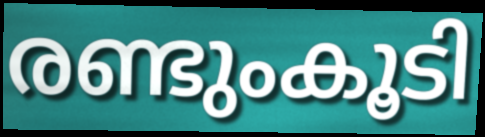
രണ്ടുംകൂടി